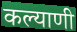
कल्याणी